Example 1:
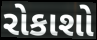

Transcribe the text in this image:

રોકાશો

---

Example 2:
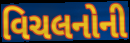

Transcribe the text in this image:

વિચલનોની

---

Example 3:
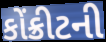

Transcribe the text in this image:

કોંક્રીટની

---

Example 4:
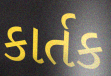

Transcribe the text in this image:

કાર્તક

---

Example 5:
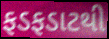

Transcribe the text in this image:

ફડફડાટથી